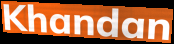
Khandan